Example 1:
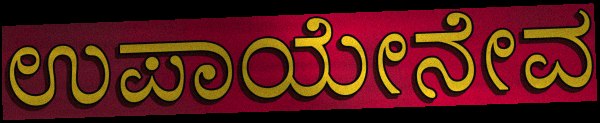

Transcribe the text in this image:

ಉಪಾಯೇನೇವ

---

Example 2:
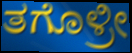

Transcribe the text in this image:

ತಗೊಳ್ರೀ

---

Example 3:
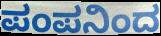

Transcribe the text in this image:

ಪಂಪನಿಂದ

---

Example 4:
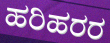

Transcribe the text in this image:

ಹರಿಹರರ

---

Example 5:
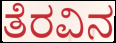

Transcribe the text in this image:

ತೆರವಿನ